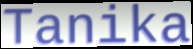
Tanika